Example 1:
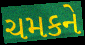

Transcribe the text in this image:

ચમકને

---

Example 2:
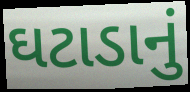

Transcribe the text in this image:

ઘટાડાનું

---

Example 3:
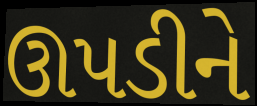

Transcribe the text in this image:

ઊપડીને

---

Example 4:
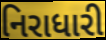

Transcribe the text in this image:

નિરાધારી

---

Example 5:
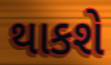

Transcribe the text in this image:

થાકશે